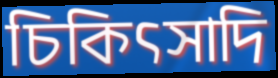
চিকিৎসাদি